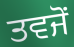
ਤਵਜੋਂ